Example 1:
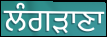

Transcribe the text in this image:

ਲੰਗੜਾਣਾ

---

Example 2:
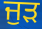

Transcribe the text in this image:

ਜੁੜ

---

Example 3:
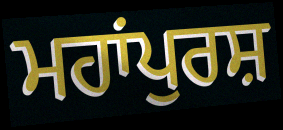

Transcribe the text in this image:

ਮਹਾਂਪੁਰਸ਼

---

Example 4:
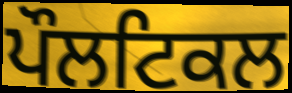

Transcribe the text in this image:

ਪੌਲਟਿਕਲ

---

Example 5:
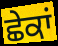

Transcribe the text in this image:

ਛੇਕਾਂ